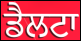
ਡੈਲਟਾ